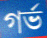
গর্ভ